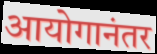
आयोगानंतर